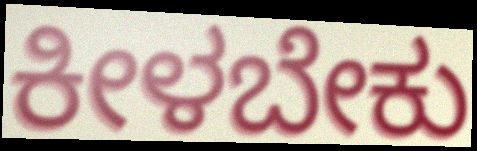
ಕೀಳಬೇಕು